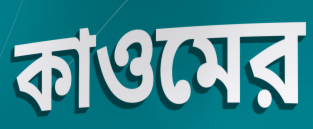
কাওমের